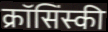
क्रॉसिंस्की